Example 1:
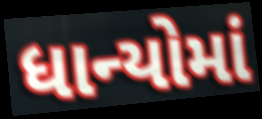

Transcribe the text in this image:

ધાન્યોમાં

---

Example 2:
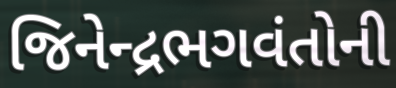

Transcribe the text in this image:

જિનેન્દ્રભગવંતોની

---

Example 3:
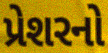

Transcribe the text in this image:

પ્રેશરનો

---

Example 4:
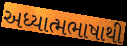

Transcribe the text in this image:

અધ્યાત્મભાષાથી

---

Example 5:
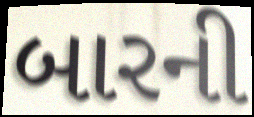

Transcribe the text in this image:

બારની